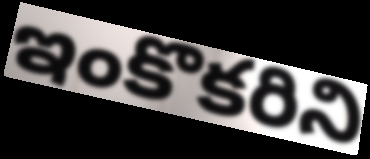
ఇంకొకరిని